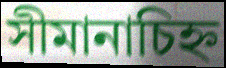
সীমানাচিহ্ন